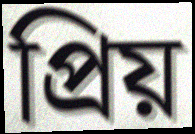
প্রিয়